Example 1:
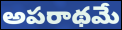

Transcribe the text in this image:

అపరాథమే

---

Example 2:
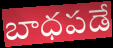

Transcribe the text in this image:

బాధపడే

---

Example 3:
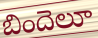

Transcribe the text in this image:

బిందెలూ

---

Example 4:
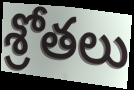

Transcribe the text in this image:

శ్రోతలు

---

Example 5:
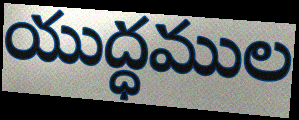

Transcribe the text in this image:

యుద్ధముల